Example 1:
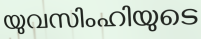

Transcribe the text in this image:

യുവസിംഹിയുടെ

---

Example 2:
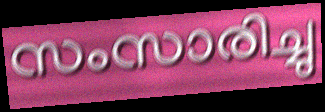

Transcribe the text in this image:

സംസാരിച്ചു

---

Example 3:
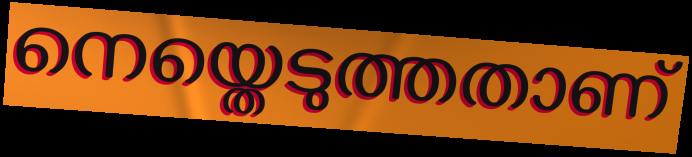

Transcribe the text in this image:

നെയ്തെടുത്തതാണ്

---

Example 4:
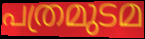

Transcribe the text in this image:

പത്രമുടമ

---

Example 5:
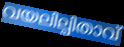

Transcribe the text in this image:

വയലില്പിതാവ്